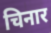
चिनार